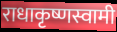
राधाकृष्णस्वामी